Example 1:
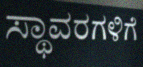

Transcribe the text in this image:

ಸ್ಥಾವರಗಳಿಗೆ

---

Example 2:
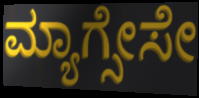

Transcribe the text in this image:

ಮ್ಯಾಗ್ಸೇಸೇ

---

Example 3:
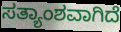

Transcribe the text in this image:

ಸತ್ಯಾಂಶವಾಗಿದೆ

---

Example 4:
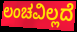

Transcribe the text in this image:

ಲಂಚವಿಲ್ಲದೆ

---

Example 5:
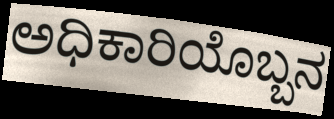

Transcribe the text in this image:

ಅಧಿಕಾರಿಯೊಬ್ಬನ